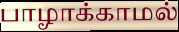
பாழாக்காமல்